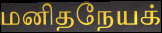
மனிதநேயக்